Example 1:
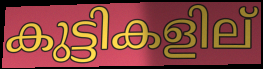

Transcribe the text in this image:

കുട്ടികളില്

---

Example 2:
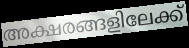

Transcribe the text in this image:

അക്ഷരങ്ങളിലേക്ക്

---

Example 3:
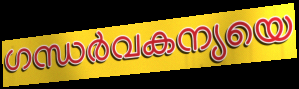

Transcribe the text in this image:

ഗന്ധർവകന്യയെ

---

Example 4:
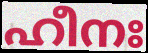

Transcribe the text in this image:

ഹീനഃ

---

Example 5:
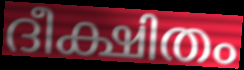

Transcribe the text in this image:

ദീക്ഷിതം